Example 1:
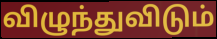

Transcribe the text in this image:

விழுந்துவிடும்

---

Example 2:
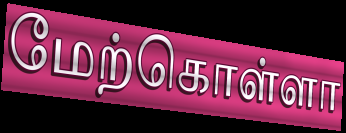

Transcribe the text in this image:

மேற்கொள்ளா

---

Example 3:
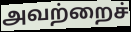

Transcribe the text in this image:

அவற்றைச்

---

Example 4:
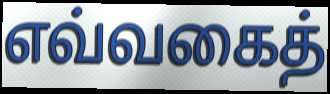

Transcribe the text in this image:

எவ்வகைத்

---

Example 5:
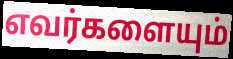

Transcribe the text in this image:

எவர்களையும்